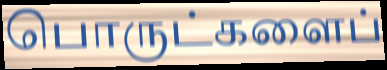
பொருட்களைப்